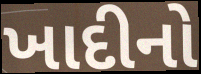
ખાદીનો